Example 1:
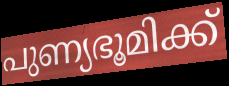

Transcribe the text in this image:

പുണ്യഭൂമിക്ക്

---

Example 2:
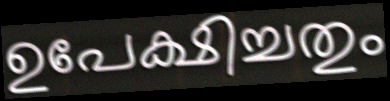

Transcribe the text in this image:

ഉപേക്ഷിച്ചതും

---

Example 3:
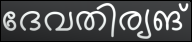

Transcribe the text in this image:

ദേവതിര്യങ്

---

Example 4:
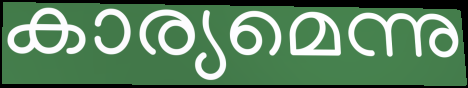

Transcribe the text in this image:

കാര്യമെന്നു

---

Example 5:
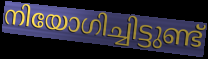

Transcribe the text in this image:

നിയോഗിച്ചിട്ടുണ്ട്